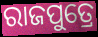
ରାଜପୁତ୍ରେ